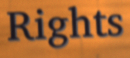
Rights